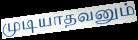
முடியாதவனும்